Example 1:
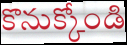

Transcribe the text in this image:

కొనుక్కోండి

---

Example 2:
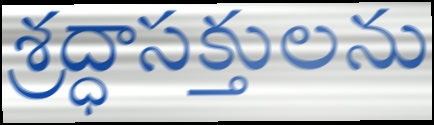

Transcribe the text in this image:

శ్రద్ధాసక్తులను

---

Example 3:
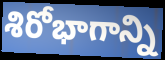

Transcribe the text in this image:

శిరోభాగాన్ని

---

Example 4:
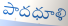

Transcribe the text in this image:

పాదధూళి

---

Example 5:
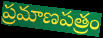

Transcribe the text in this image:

ప్రమాణపత్రం